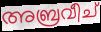
അബ്രവീച്